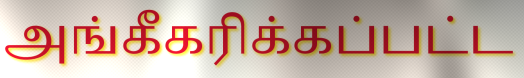
அங்கீகரிக்கப்பட்ட